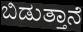
ಬಿಡುತ್ತಾನೆ